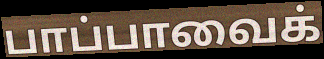
பாப்பாவைக்